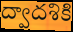
ద్వాదశికి